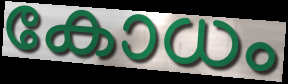
കോധം